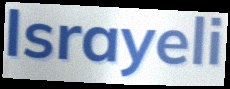
Israyeli